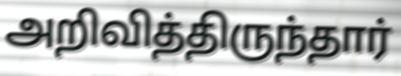
அறிவித்திருந்தார்